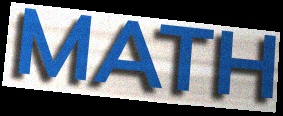
MATH